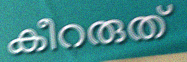
കീറരുത്